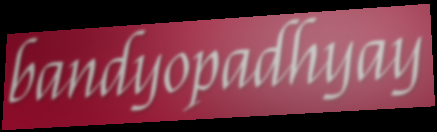
bandyopadhyay